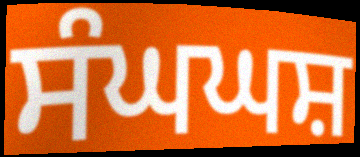
ਸੰਘਘਸ਼